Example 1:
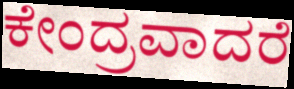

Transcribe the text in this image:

ಕೇಂದ್ರವಾದರೆ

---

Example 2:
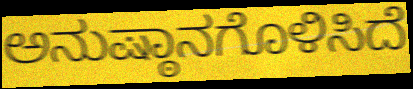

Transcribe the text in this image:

ಅನುಷ್ಠಾನಗೊಳಿಸಿದೆ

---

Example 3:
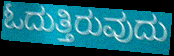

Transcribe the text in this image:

ಓದುತ್ತಿರುವುದು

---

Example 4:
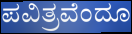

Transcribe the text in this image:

ಪವಿತ್ರವೆಂದೂ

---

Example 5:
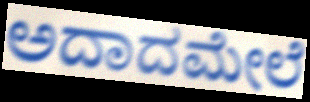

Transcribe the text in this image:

ಅದಾದಮೇಲೆ